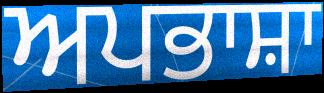
ਅਪਭਾਸ਼ਾ